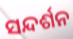
ସନ୍ଦର୍ଶନ